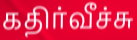
கதிர்வீச்சு